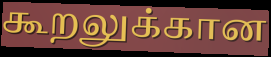
கூறலுக்கான